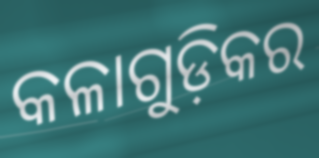
କଳାଗୁଡ଼ିକର